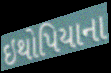
ઇથોપિયાના